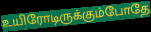
உயிரோடிருக்கும்போதே